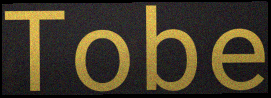
Tobe